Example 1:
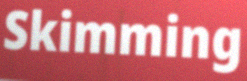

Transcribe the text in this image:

Skimming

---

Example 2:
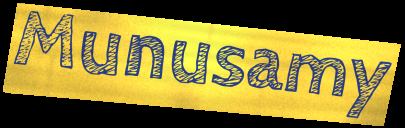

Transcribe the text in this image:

Munusamy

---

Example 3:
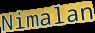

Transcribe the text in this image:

Nimalan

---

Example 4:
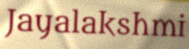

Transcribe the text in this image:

Jayalakshmi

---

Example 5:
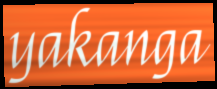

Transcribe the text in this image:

yakanga